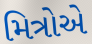
મિત્રોએ